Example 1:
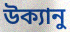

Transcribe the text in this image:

উক্যানু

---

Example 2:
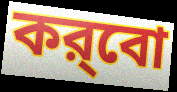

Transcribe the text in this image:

কর্‌বো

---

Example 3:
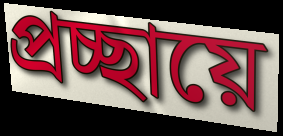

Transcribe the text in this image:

প্রচ্ছায়ে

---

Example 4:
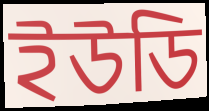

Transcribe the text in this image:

ইউডি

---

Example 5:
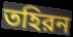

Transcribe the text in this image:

তহিরন